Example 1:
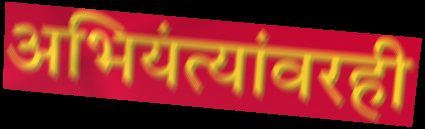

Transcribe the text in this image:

अभियंत्यांवरही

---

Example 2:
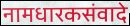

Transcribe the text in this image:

नामधारकसंवादे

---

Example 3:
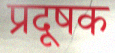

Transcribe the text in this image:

प्रदूषक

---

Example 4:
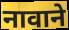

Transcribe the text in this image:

नावाने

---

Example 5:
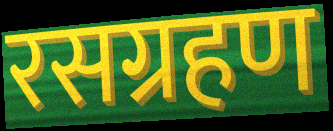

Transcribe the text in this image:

रसग्रहण